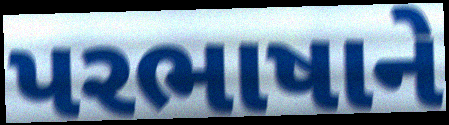
પરભાષાને